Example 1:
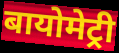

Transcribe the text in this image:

बायोमेट्री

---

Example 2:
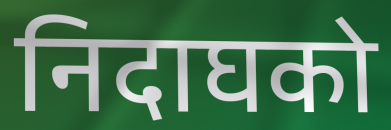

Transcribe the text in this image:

निदाघको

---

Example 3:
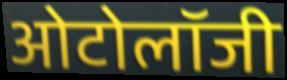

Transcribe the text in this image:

ओटोलॉजी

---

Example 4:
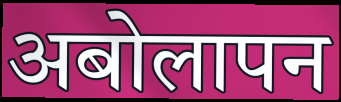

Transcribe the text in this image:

अबोलापन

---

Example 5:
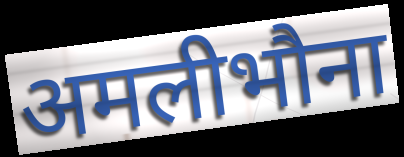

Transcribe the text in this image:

अमलीभौना